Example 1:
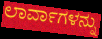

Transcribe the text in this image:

ಲಾರ್ವಾಗಳನ್ನು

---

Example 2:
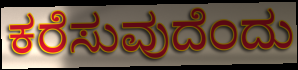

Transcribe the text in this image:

ಕರೆಸುವುದೆಂದು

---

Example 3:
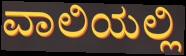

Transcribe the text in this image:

ವಾಲಿಯಲ್ಲಿ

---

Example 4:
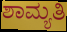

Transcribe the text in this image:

ಶಾಮ್ಯತಿ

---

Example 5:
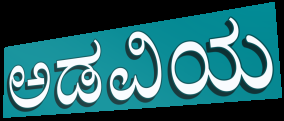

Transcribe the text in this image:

ಅಡವಿಯ